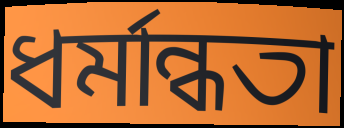
ধৰ্মান্ধতা